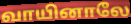
வாயினாலே